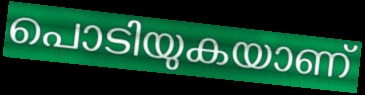
പൊടിയുകയാണ്